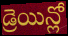
డ్రెయిన్లో